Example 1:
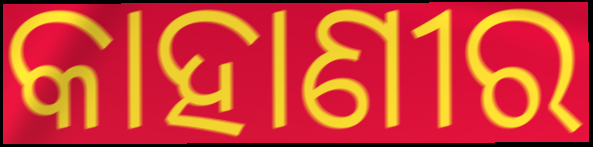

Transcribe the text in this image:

କାହାଣୀର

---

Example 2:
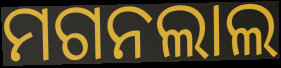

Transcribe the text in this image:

ମଗନଲାଲ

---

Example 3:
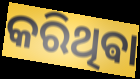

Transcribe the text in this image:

କରିଥିଵା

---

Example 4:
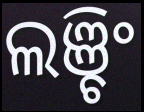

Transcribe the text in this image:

ଲଞ୍ଚିଂ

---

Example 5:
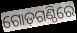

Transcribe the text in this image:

ଗୋଡ଼ଗଣ୍ଠିରେ